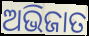
ଅଭିଜାତ